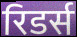
रिडर्स